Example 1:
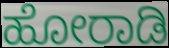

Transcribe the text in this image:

ಹೋರಾಡಿ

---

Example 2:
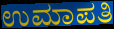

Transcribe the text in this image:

ಉಮಾಪತಿ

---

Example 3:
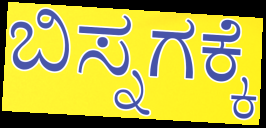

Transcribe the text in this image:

ಬಿಸ್ನಗಕ್ಕೆ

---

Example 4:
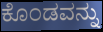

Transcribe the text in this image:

ಕೊಂಡವನ್ನು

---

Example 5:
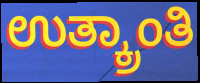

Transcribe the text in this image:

ಉತ್ಕ್ರಾಂತಿ